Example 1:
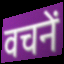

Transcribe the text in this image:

वचनें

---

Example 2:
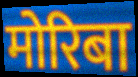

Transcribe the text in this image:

मोरिबा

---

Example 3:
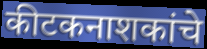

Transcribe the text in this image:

कीटकनाशकांचे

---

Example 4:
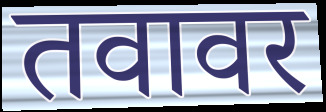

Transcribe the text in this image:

तवावर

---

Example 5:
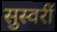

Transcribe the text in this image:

सुस्वरीं